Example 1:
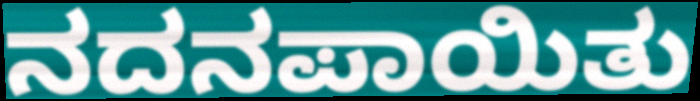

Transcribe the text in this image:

ನದನಪಾಯಿತು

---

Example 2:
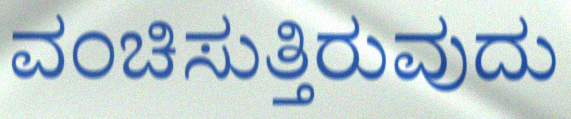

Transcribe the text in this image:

ವಂಚಿಸುತ್ತಿರುವುದು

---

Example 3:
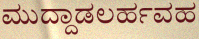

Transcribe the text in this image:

ಮುದ್ದಾಡಲರ್ಹವಹ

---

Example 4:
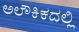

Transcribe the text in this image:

ಅಲೌಕಿಕದಲ್ಲಿ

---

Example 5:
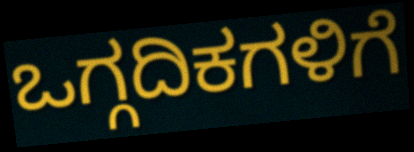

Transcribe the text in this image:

ಒಗ್ಗದಿಕಗಳಿಗೆ